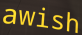
awish